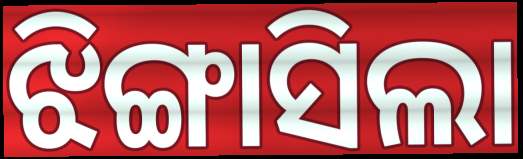
ଝିଙ୍ଗାସିଲା